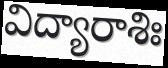
విద్యారాశిః